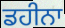
ਡਹੀਨਾ